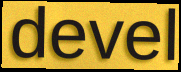
devel